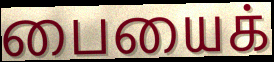
பையைக்